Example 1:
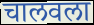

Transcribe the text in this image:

चालवला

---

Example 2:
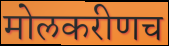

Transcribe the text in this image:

मोलकरीणच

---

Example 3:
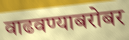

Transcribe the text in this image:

वाढवण्याबरोबर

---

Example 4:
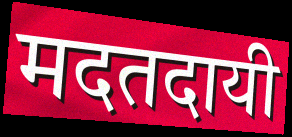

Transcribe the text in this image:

मदतदायी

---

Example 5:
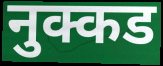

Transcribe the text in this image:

नुक्कड